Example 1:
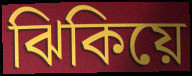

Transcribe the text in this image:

ঝিকিয়ে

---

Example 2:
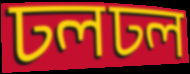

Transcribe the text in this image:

ঢলঢল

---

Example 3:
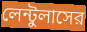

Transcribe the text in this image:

লেন্টুলাসের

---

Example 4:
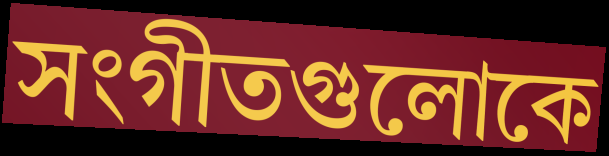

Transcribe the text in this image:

সংগীতগুলোকে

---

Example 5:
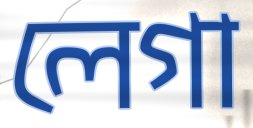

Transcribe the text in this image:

লেগা